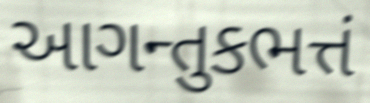
આગન્તુકભત્તં